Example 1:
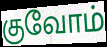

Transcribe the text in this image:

குவோம்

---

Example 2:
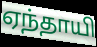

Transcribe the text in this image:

ஏந்தாயி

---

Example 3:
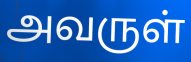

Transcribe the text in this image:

அவருள்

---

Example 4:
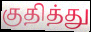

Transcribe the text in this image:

குதித்து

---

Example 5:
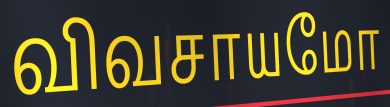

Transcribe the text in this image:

விவசாயமோ